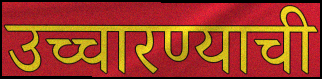
उच्चारण्याची